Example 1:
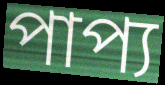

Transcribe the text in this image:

পাপ্য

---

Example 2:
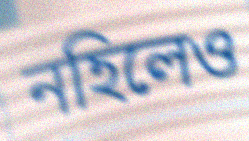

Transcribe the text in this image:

নহিলেও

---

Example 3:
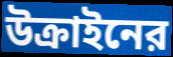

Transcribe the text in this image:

উক্রাইনের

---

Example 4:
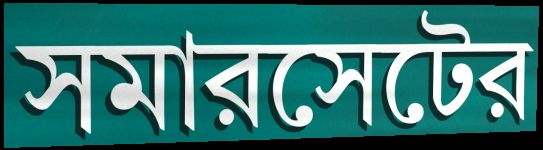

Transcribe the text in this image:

সমারসেটের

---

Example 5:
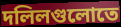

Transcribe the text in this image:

দলিলগুলোতে